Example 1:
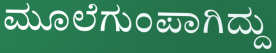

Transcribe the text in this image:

ಮೂಲೆಗುಂಪಾಗಿದ್ದು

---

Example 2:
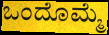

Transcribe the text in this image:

ಒಂದೊಮ್ಮೆ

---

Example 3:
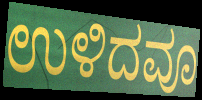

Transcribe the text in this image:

ಉಳಿದವೂ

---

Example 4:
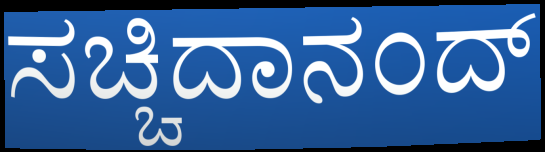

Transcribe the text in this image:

ಸಚ್ಚಿದಾನಂದ್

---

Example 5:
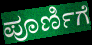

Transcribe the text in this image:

ಪೂರ್ಣಿಗೆ